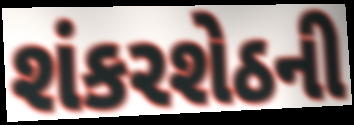
શંકરશેઠની